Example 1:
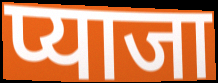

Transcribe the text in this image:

प्याजा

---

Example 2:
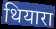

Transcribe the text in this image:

थियारा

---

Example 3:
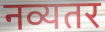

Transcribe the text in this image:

नव्यतर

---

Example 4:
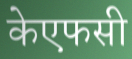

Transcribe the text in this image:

केएफसी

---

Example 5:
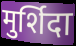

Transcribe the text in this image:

मुर्शिदा